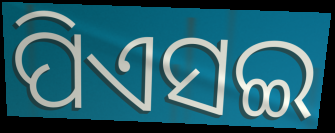
ପିଏସଇ